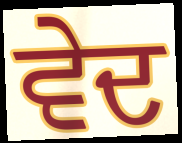
ਵੇਦ